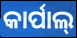
କାର୍ପାଲ୍